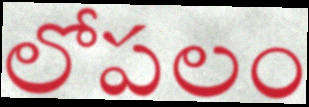
లోపలం